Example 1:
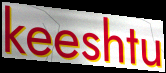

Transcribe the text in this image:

keeshtu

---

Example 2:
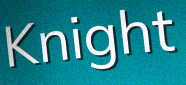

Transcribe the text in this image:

Knight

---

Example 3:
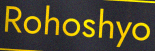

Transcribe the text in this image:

Rohoshyo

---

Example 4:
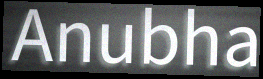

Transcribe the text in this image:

Anubha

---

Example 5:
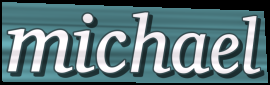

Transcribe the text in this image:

michael